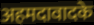
अहमदावादके